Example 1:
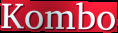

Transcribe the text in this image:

Kombo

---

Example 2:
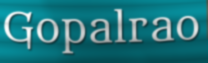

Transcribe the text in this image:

Gopalrao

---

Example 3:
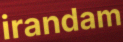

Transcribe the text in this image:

irandam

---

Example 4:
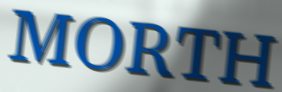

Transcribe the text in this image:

MORTH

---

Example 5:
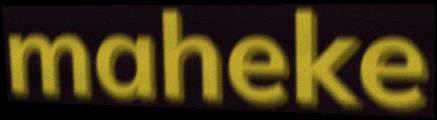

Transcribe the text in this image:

maheke